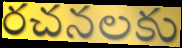
రచనలకు